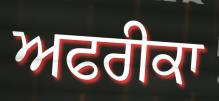
ਅਫਰੀਕਾ